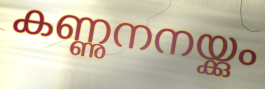
കണ്ണുനനയ്ക്കും